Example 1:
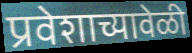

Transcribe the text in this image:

प्रवेशाच्यावेळी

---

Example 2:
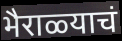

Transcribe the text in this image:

भैराळ्याचं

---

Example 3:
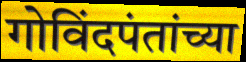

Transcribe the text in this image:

गोविंदपंतांच्या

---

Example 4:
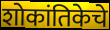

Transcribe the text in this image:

शोकांतिकेचे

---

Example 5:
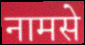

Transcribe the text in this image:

नामसे